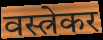
वस्त्रेकर